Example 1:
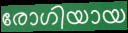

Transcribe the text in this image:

രോഗിയായ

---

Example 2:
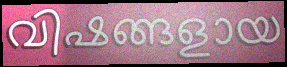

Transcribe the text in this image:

വിഷങ്ങളായ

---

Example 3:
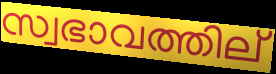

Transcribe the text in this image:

സ്വഭാവത്തില്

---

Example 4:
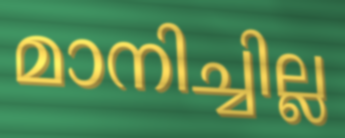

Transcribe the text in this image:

മാനിച്ചില്ല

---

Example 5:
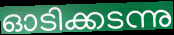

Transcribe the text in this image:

ഓടിക്കടന്നു